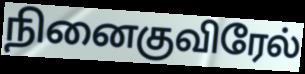
நினைகுவிரேல்